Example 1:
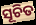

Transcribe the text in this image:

ସୂଚିତ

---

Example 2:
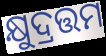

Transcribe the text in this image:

କ୍ଷୁଦ୍ରତ୍ତମ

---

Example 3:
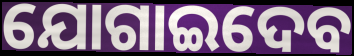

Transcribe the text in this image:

ଯୋଗାଇଦେବ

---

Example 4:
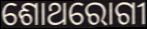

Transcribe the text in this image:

ଶୋଥରୋଗୀ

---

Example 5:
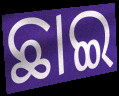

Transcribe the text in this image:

ଛାଇ